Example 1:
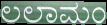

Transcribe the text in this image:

ಲಲಾಮಂ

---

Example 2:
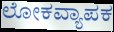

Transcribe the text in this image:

ಲೋಕವ್ಯಾಪಕ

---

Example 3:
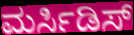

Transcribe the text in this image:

ಮರ್ಸಿಡಿಸ್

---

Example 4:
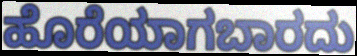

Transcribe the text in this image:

ಹೊರೆಯಾಗಬಾರದು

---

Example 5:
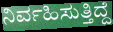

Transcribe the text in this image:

ನಿರ್ವಹಿಸುತ್ತಿದ್ದೆ